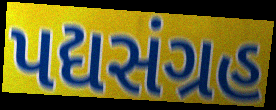
પદ્યસંગ્રહ